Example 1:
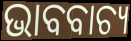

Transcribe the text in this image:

ଭାବବାଚ୍ୟ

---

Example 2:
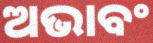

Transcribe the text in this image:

ଅଭାବଂ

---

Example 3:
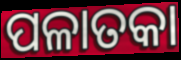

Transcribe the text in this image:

ପଳାତକା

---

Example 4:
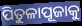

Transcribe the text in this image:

ପିତୁଳାପୂଜାକୁ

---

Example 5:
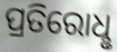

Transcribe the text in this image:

ପ୍ରତିରୋଧୢ